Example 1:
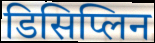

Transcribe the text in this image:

डिसिप्लिन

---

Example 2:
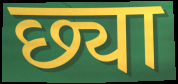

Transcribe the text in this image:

छ्या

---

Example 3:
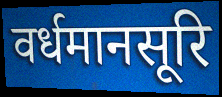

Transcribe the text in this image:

वर्धमानसूरि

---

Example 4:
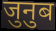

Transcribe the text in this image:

जुनुब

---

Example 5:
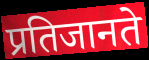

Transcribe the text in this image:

प्रतिजानते